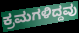
ಕ್ರಮಗಳಿದ್ದವು